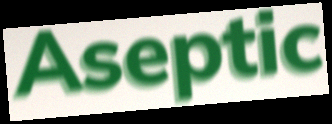
Aseptic